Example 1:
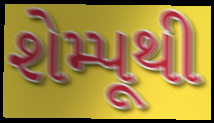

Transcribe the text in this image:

શેમ્પૂથી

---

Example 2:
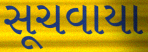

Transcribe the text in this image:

સૂચવાયા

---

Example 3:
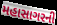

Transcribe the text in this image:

મહાસાગરની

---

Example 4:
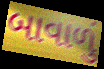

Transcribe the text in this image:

બાવાળું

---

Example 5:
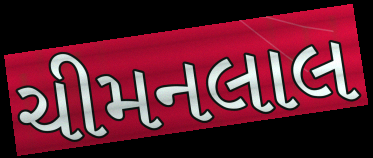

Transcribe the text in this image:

ચીમનલાલ